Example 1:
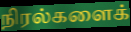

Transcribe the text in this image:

நிரல்களைக்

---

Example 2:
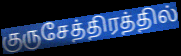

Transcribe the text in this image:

குருசேத்திரத்தில்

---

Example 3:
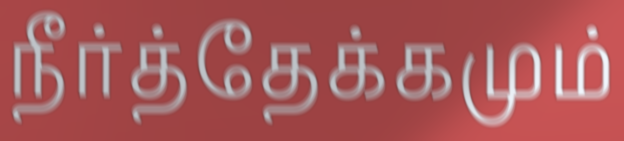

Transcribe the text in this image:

நீர்த்தேக்கமும்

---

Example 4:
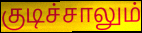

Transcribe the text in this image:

குடிச்சாலும்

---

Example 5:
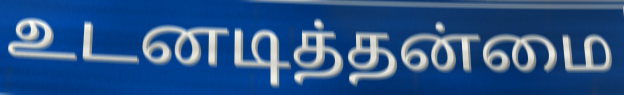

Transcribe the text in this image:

உடனடித்தன்மை